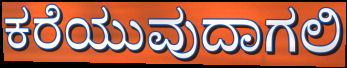
ಕರೆಯುವುದಾಗಲಿ